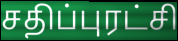
சதிப்புரட்சி